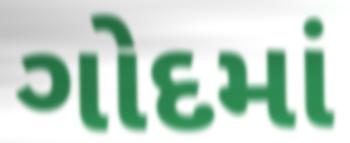
ગોદમાં